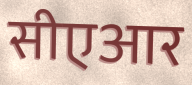
सीएआर